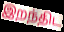
இறந்திட